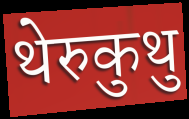
थेरुकुथु